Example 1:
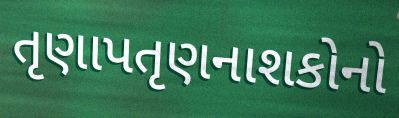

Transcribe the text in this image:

તૃણાપતૃણનાશકોનો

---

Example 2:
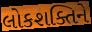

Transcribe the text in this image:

લોકશક્તિને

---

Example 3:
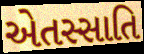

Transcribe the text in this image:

એતસ્સાતિ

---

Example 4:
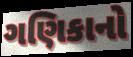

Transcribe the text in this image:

ગણિકાનો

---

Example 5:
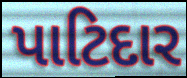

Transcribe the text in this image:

પાટિદાર